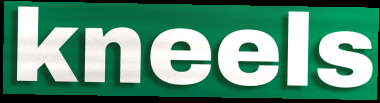
kneels